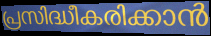
പ്രസിദ്ധീകരിക്കാൻ